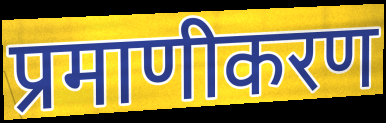
प्रमाणीकरण